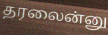
தரலைன்னு